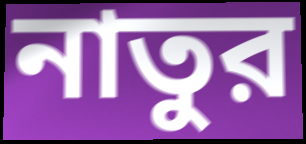
নাতুর